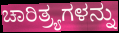
ಚಾರಿತ್ರ್ಯಗಳನ್ನು